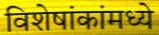
विशेषांकांमध्ये